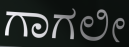
ಗಾಗಲೀ